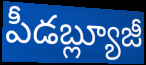
పీడబ్ల్యూజీ